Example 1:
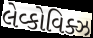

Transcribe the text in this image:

લેવ્કોવિક્ઝ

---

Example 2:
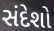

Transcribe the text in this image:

સંદેશો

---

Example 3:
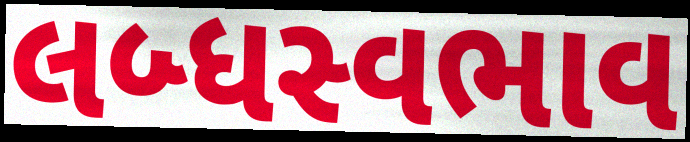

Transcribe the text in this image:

લબ્ધસ્વભાવ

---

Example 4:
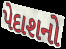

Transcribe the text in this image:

પેદાશનો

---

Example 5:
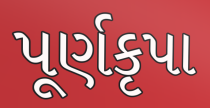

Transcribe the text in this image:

પૂર્ણકૃપા